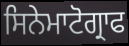
ਸਿਨੇਮਾਟੋਗ੍ਰਾਫ